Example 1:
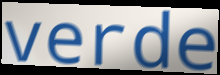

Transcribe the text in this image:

verde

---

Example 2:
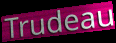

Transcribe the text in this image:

Trudeau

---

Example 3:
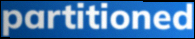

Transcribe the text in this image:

partitioned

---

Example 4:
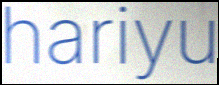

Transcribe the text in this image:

hariyu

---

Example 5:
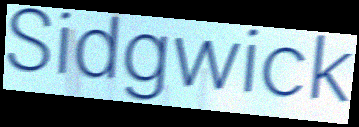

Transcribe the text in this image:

Sidgwick